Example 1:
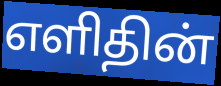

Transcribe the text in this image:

எளிதின்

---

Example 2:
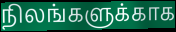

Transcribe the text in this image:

நிலங்களுக்காக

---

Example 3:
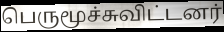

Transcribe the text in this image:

பெருமூச்சுவிட்டனர்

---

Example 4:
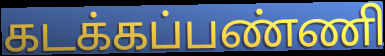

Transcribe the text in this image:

கடக்கப்பண்ணி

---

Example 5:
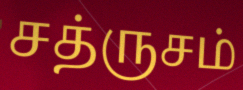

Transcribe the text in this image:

சத்ருசம்